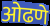
ओढणे